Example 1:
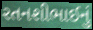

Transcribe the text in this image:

રતનશીભાઈનું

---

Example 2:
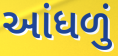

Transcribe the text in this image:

આંધળું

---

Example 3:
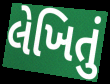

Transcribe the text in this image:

લેખિતું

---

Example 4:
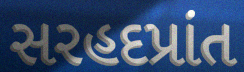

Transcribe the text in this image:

સરહદપ્રાંત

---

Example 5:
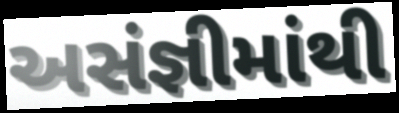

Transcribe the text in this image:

અસંજ્ઞીમાંથી